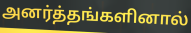
அனர்த்தங்களினால்